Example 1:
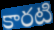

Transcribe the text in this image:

కారటి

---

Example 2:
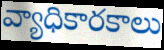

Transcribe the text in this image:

వ్యాధికారకాలు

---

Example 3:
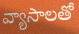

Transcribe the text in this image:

వ్యాసాలతో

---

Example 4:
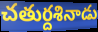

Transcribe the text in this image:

చతుర్దశినాడు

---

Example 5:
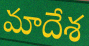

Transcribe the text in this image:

మాదేశ